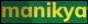
manikya